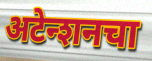
अटेन्शनचा